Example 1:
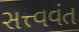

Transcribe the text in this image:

સત્ત્વવંત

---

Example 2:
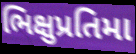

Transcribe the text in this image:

ભિક્ષુપ્રતિમા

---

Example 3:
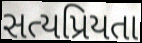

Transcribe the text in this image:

સત્યપ્રિયતા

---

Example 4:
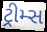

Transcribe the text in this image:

ટ્રીમ્સ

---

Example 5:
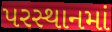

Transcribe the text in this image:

પરસ્થાનમાં